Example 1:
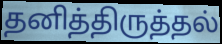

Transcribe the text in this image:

தனித்திருத்தல்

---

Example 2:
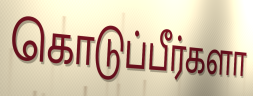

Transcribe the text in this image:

கொடுப்பீர்களா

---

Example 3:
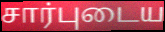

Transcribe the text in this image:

சார்புடைய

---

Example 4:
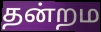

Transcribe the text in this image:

தன்றம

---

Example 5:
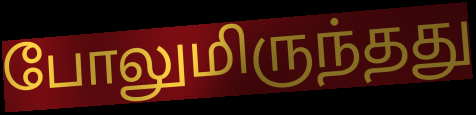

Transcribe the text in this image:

போலுமிருந்தது